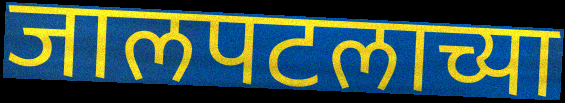
जालपटलाच्या